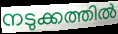
നടുക്കത്തിൽ